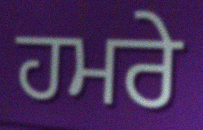
ਹਮਰੇ